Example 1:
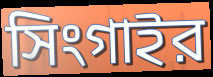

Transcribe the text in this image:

সিংগাইর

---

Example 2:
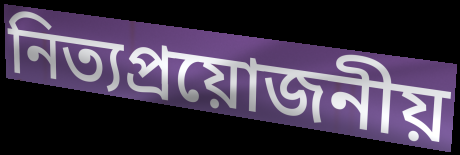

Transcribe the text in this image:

নিত্যপ্রয়োজনীয়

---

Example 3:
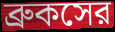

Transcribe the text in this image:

ব্রুকসের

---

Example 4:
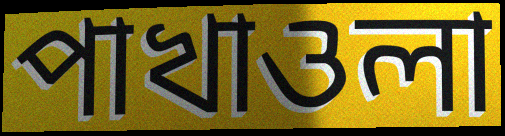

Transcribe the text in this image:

পাখাওলা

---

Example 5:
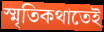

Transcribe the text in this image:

স্মৃতিকথাতেই